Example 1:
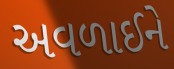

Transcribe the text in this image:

અવળાઈને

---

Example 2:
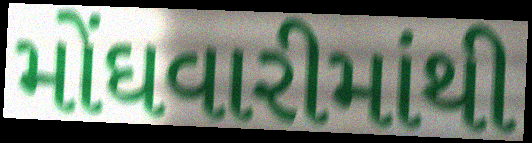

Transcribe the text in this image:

મોંઘવારીમાંથી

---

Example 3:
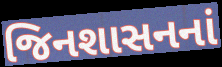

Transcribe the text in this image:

જિનશાસનનાં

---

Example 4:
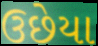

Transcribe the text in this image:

ઉછેયા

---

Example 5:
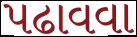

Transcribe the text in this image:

પઢાવવા